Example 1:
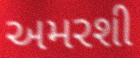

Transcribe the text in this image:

અમરશી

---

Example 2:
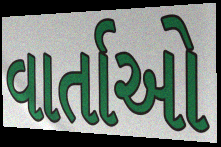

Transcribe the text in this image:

વાર્તાઓ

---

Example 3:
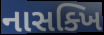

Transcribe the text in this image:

નાસક્ખિ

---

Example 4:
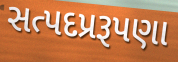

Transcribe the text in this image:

સત્પદપ્રરૂપણા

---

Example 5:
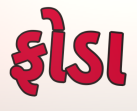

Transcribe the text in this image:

ફોડા